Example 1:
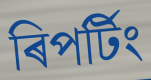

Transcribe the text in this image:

ৰিপৰ্টিং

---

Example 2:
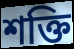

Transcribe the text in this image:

শক্তি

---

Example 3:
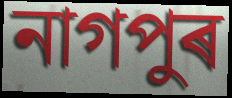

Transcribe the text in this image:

নাগপুৰ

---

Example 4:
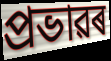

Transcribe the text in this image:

প্ৰভাৱৰ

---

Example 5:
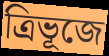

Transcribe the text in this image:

ত্ৰিভূজে